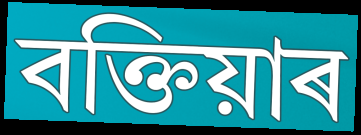
বক্তিয়াৰ